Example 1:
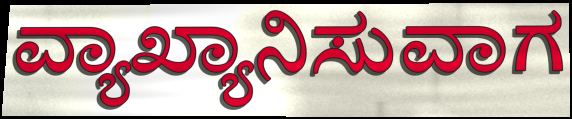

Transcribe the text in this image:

ವ್ಯಾಖ್ಯಾನಿಸುವಾಗ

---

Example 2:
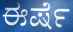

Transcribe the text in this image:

ಈರ್ಷೆ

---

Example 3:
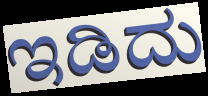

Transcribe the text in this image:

ಇಡಿದು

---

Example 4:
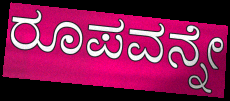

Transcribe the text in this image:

ರೂಪವನ್ನೇ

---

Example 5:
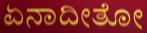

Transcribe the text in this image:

ಏನಾದೀತೋ